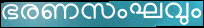
ഭരണസംഘവും